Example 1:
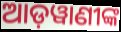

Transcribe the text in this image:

ଆଡ଼ୱାଣୀଙ୍କ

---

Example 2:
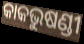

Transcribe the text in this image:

କାକଭୁଷଣ୍ଡୀ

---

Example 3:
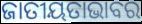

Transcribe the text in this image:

ଜାତୀୟତାଭାବର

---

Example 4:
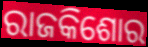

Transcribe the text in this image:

ରାଜକିଶୋର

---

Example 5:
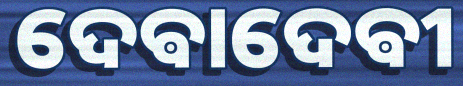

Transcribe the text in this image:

ଦେଵାଦେଵୀ